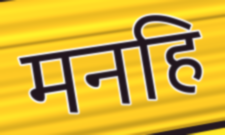
मनहि